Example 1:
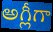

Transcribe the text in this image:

అగ్లీగా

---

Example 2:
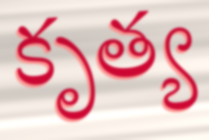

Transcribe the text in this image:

కృత్య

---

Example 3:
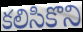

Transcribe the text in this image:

కలిసికొని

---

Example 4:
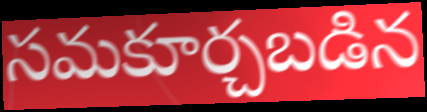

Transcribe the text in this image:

సమకూర్చబడిన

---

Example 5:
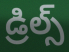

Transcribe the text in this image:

డ్రిల్స్